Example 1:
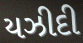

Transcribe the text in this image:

યઝીદી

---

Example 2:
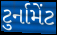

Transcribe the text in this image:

ટુર્નામેંટ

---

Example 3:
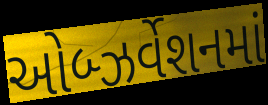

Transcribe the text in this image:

ઓબ્ઝર્વેશનમાં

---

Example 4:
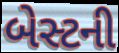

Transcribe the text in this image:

બેસ્ટની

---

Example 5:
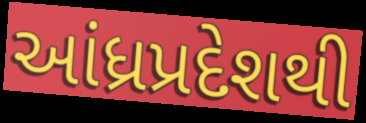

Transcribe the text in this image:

આંધ્રપ્રદેશથી